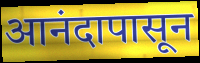
आनंदापासून